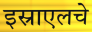
इस्राएलचे